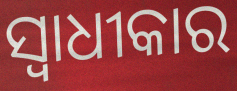
ସ୍ୱାଧୀକାର